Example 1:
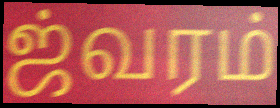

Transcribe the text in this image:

ஜ்வரம்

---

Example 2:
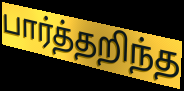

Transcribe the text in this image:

பார்த்தறிந்த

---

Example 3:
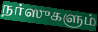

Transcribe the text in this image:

நர்ஸுகளும்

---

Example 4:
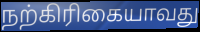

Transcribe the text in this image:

நற்கிரிகையாவது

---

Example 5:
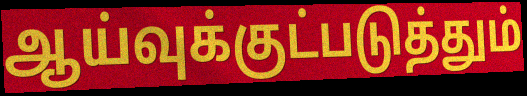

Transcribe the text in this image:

ஆய்வுக்குட்படுத்தும்